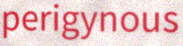
perigynous